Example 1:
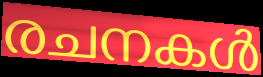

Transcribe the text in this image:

രചനകൾ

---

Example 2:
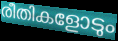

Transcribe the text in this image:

രീതികളോടും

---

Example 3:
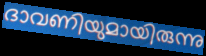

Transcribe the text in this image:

ദാവണിയുമായിരുന്നു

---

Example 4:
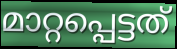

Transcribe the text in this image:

മാറ്റപ്പെട്ടത്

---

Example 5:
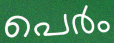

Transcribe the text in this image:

പെർം